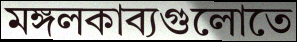
মঙ্গলকাব্যগুলোতে